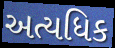
અત્યધિક